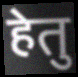
हेतु